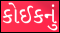
કોઈકનું